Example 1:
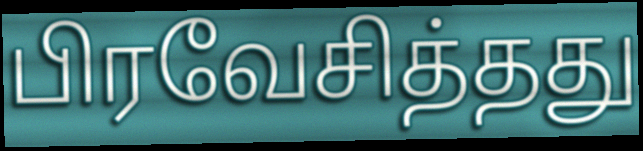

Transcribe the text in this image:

பிரவேசித்தது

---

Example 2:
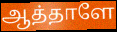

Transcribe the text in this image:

ஆத்தாளே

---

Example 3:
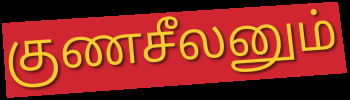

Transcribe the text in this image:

குணசீலனும்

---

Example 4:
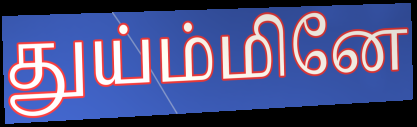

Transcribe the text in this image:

துய்ம்மினே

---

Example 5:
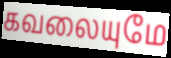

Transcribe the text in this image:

கவலையுமே